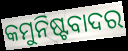
କମୁନିଷ୍ଟବାଦର